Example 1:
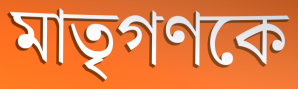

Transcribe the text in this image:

মাতৃগণকে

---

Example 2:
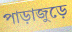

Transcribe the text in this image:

পাড়াজুড়ে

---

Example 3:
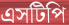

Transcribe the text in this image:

এসটিপি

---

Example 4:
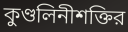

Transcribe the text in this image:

কুণ্ডলিনীশক্তির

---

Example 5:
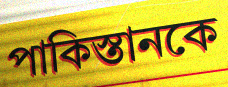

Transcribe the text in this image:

পাকিস্তানকে